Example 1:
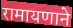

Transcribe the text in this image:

रामायणाने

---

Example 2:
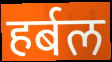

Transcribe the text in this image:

हर्बल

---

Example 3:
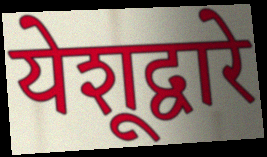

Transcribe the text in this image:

येशूद्वारे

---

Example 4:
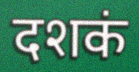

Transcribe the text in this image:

दशकं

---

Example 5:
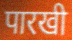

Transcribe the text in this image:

पारखी